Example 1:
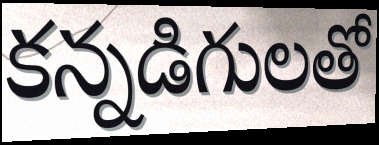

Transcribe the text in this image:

కన్నడిగులతో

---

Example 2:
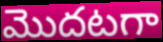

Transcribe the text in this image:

మొదటగా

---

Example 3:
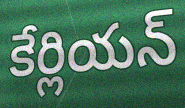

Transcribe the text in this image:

కేర్లియన్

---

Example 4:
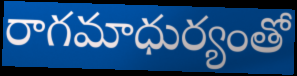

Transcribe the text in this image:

రాగమాధుర్యంతో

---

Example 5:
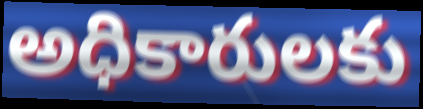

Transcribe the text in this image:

అధికారులకు